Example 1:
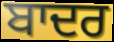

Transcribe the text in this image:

ਬਾਦਰ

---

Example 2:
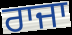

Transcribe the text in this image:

ਰਾਜਾ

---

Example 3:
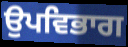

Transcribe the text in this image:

ਉਪਵਿਭਾਗ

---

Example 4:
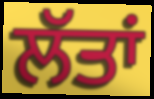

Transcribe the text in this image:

ਲੱਤਾਂ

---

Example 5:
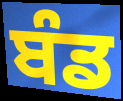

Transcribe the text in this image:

ਬੰਡ